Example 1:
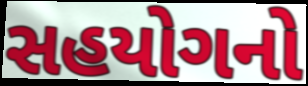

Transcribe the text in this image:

સહયોગનો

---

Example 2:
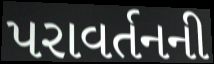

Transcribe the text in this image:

પરાવર્તનની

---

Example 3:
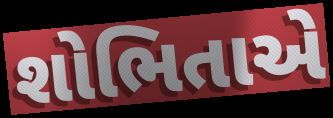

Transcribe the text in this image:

શોભિતાએ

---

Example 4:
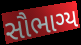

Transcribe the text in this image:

સૌભાગ્ય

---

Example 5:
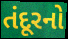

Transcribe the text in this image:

તંદૂરનો